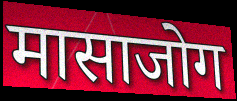
मासाजोग